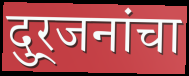
दुर्जनांचा